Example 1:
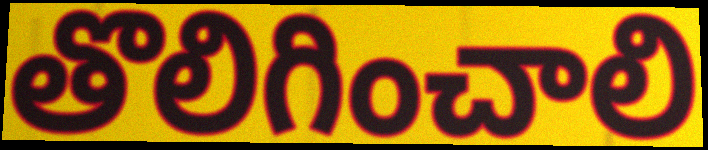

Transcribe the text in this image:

తొలిగించాలి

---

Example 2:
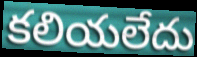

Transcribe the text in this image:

కలియలేదు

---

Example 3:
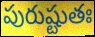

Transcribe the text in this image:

పురుష్టుతః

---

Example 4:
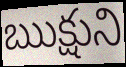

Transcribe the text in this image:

ఋక్షుని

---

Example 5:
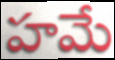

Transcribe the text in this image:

హమే